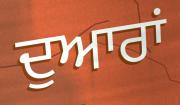
ਦੁਆਰਾਂ